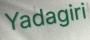
Yadagiri